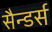
सैन्डर्स